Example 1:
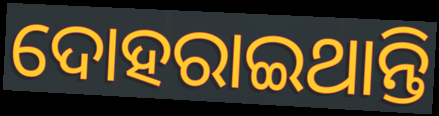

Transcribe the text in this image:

ଦୋହରାଇଥାନ୍ତି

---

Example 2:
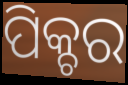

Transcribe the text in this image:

ପିକ୍ଚର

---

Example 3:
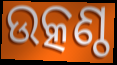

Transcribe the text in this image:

ଉତ୍କଣ୍ଠ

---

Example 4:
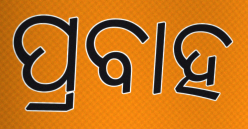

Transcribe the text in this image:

ପ୍ରବାହ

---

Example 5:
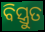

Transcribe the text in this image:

ବିସ୍ତ୍ରୁତ